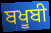
ਬਖੂਬੀ